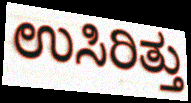
ಉಸಿರಿತ್ತು